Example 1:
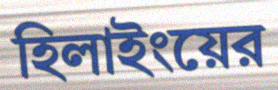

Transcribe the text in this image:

হিলাইংয়ের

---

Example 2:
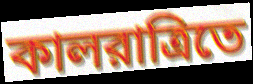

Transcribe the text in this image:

কালরাত্রিতে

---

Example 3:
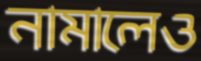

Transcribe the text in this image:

নামালেও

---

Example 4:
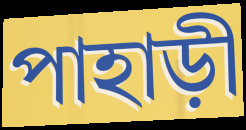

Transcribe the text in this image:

পাহাড়ী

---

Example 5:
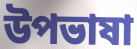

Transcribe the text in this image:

উপভাষা